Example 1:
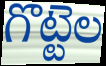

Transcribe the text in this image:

గొట్టెల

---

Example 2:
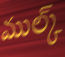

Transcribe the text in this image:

ముల్క్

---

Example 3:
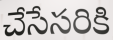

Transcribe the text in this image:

చేసేసరికి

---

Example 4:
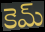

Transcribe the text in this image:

కెమ్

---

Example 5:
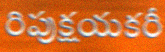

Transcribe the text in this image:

రిపుక్షయకరీ